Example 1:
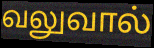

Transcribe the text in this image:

வலுவால்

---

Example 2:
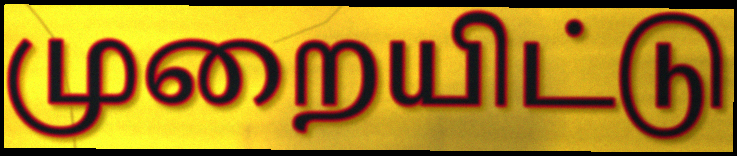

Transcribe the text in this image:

முறையிட்டு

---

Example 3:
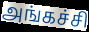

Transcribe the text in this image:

அங்கச்சி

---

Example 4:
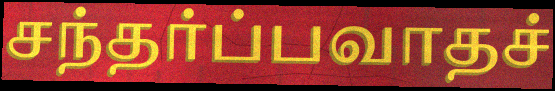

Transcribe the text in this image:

சந்தர்ப்பவாதச்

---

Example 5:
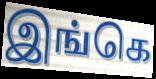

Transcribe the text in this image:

இங்கெ